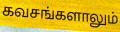
கவசங்களாலும்